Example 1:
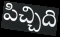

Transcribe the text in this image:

పిచ్చిది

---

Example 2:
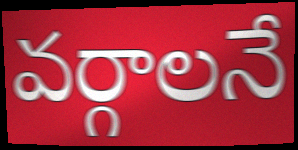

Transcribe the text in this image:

వర్గాలనే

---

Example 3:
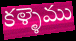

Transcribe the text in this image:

కళ్ళెము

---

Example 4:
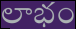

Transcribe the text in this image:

లాభం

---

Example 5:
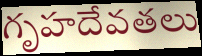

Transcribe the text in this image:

గృహదేవతలు